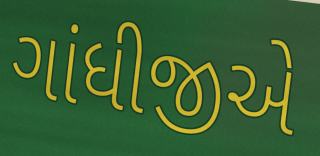
ગાંધીજીએ